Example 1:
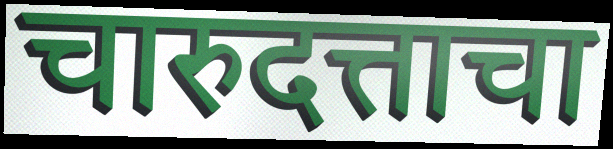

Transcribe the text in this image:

चारुदत्ताचा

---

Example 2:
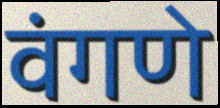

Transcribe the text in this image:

वंगणे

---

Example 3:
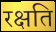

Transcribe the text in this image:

रक्षति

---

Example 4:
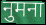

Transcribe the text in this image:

नुमना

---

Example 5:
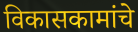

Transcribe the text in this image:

विकासकामांचे